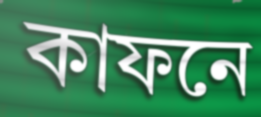
কাফনে